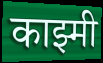
काझ्मी